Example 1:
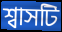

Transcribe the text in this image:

শ্বাসটি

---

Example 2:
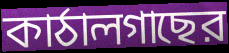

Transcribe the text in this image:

কাঠালগাছের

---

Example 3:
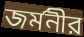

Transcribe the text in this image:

জর্মনীর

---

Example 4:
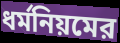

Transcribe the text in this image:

ধর্মনিয়মের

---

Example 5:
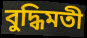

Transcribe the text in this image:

বুদ্ধিমতী